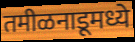
तमीळनाडूमध्ये